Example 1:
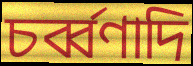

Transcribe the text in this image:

চর্ব্বণাদি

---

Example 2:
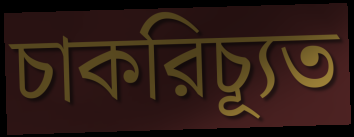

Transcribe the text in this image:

চাকরিচ্যূত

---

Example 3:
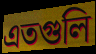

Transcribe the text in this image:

এতগুলি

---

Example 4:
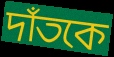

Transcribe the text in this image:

দাঁতকে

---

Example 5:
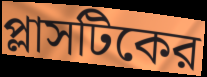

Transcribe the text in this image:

প্লাসটিকের